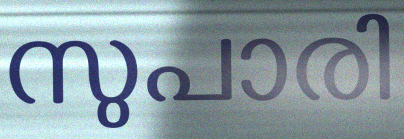
സുപാരി